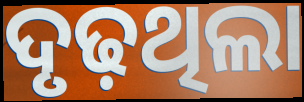
ଦୃଢ଼ଥିଲା